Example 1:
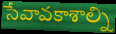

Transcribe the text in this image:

సేవావకాశాల్ని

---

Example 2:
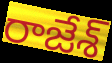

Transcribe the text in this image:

రాజేశ్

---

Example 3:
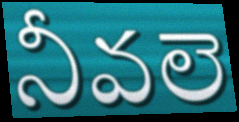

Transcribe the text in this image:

నీవలె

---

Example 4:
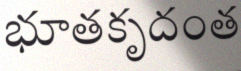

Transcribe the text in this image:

భూతకృదంత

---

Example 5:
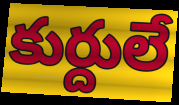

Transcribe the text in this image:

కుర్దులే